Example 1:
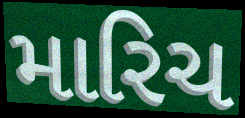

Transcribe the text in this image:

મારિચ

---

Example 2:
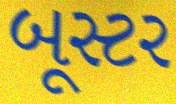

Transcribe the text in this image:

બૂસ્ટર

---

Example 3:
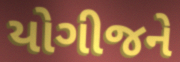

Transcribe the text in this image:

યોગીજને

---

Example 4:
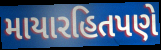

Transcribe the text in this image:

માયારહિતપણે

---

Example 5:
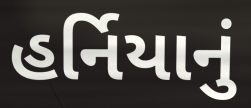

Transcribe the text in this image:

હર્નિયાનું